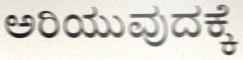
ಅರಿಯುವುದಕ್ಕೆ